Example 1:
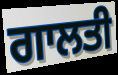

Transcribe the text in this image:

ਗਾਲਤੀ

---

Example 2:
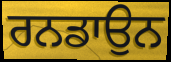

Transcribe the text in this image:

ਰਨਡਾਉਨ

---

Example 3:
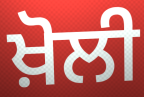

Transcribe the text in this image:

ਖ਼ੋਲੀ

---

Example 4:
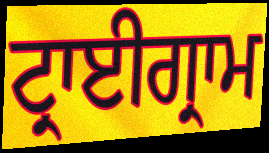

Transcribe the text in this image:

ਟ੍ਰਾਈਗ੍ਰਾਮ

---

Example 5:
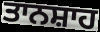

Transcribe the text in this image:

ਤਾਨਸ਼ਾਹ